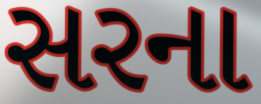
સરના